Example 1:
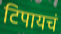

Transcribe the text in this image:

टिपायचं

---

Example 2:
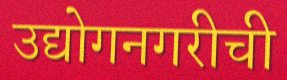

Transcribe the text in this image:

उद्योगनगरीची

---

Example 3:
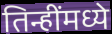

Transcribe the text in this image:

तिन्हींमध्ये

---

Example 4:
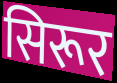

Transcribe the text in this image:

सिरूर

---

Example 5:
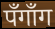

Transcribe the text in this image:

पँगाँग